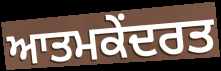
ਆਤਮਕੇਂਦਰਤ